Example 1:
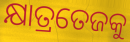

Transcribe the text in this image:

କ୍ଷାତ୍ରତେଜକୁ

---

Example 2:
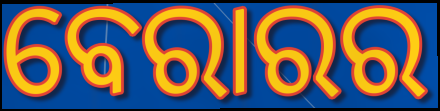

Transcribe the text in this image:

ବେରାରର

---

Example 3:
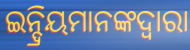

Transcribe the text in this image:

ଇନ୍ଦ୍ରିୟମାନଙ୍କଦ୍ୱାରା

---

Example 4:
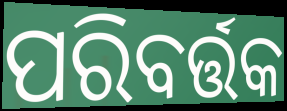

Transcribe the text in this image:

ପରିବର୍ତ୍ତକ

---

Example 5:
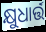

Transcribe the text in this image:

କ୍ଷୁଧାର୍ତ୍ତ